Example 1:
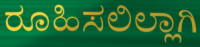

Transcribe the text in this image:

ರೂಹಿಸಲಿಲ್ಲಾಗಿ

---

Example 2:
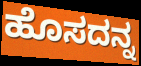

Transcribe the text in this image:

ಹೊಸದನ್ನ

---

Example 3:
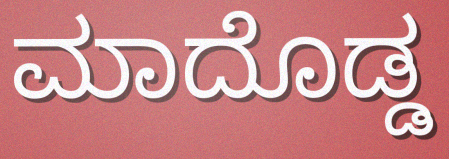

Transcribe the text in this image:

ಮಾದೊಡ್ಡ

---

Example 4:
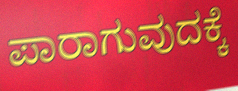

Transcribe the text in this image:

ಪಾರಾಗುವುದಕ್ಕೆ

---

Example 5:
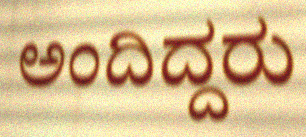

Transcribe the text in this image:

ಅಂದಿದ್ದರು